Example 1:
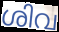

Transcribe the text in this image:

ശിവ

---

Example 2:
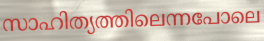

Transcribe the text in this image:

സാഹിത്യത്തിലെന്നപോലെ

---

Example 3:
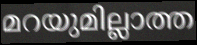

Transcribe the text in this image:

മറയുമില്ലാത്ത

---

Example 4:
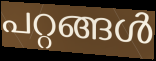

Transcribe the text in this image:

പറ്റങ്ങൾ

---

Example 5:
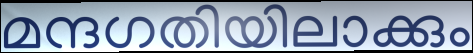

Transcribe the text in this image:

മന്ദഗതിയിലാക്കും